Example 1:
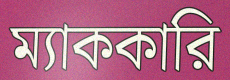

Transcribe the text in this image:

ম্যাককারি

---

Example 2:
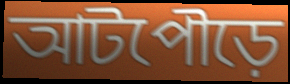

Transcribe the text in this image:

আটপৌড়ে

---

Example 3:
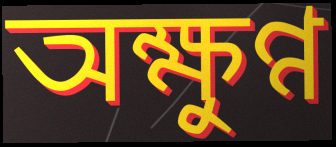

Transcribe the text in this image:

অক্ষুণ্ণ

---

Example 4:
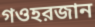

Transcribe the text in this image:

গওহরজান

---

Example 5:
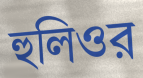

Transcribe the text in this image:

হুলিওর